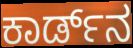
ಕಾರ್ಡ್‌ನ